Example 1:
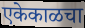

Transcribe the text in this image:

एकेकाळचा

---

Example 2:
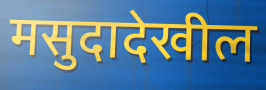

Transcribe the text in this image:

मसुदादेखील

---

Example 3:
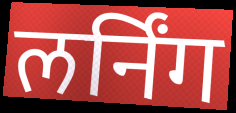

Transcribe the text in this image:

लर्निंग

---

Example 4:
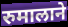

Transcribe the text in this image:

रुमालाने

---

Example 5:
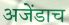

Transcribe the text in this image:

अजेंडाच